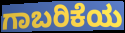
ಗಾಬರಿಕೆಯ